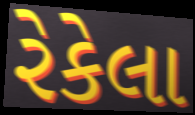
રેકેલા